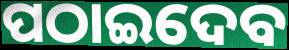
ପଠାଇଦେବ